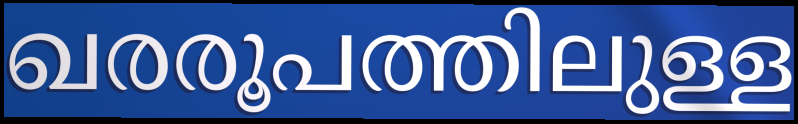
ഖരരൂപത്തിലുള്ള